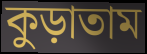
কুড়াতাম